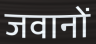
जवानों